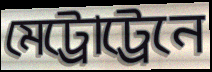
মেট্রোট্রেনে